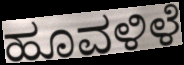
ಹೂವಳಿಳೆ